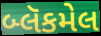
બ્લૅકમેલ